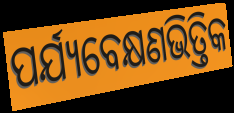
ପର୍ଯ୍ୟବେକ୍ଷଣଭିତ୍ତିକ